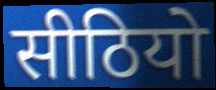
सीठियो